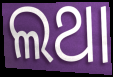
ଲଥା